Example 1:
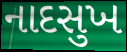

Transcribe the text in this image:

નાદસુખ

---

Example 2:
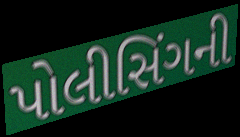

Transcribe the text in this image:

પોલીસિંગની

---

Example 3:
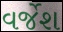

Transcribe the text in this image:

વર્જેશ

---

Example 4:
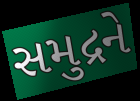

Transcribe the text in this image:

સમુદ્રને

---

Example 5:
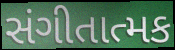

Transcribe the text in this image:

સંગીતાત્મક